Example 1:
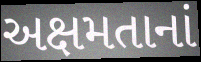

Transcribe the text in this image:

અક્ષમતાનાં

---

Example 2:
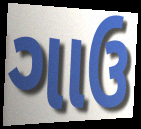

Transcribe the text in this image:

ગાઉ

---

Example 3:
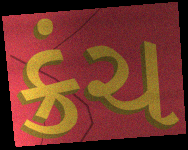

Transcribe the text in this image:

ક્રંચ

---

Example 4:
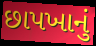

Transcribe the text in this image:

છાપખાનું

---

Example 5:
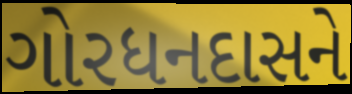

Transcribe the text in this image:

ગોરધનદાસને